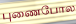
புணைபோல